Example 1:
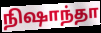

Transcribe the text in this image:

நிஷாந்தா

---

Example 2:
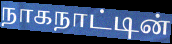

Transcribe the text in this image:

நாகநாட்டின்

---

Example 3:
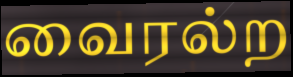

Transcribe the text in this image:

வைரல்ற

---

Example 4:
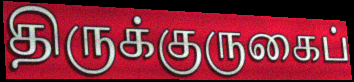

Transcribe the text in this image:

திருக்குருகைப்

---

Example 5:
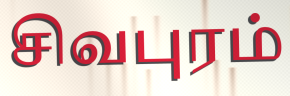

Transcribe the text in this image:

சிவபுரம்